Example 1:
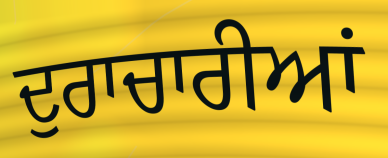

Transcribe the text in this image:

ਦੁਰਾਚਾਰੀਆਂ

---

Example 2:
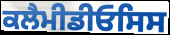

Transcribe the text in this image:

ਕਲੈਮੀਡੀਓਸਿਸ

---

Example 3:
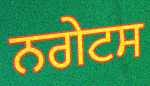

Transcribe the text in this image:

ਨਗੇਟਸ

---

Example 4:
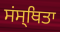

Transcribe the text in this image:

ਸਂਸ੍ਥਿਤਾ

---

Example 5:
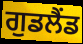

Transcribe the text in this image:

ਗੁਡਲੈਂਡ